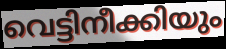
വെട്ടിനീക്കിയും